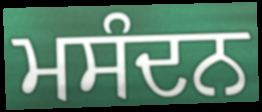
ਮਸੰਦਨ